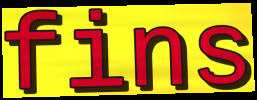
fins